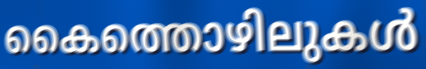
കൈത്തൊഴിലുകൾ